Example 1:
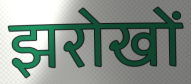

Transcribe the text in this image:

झरोखों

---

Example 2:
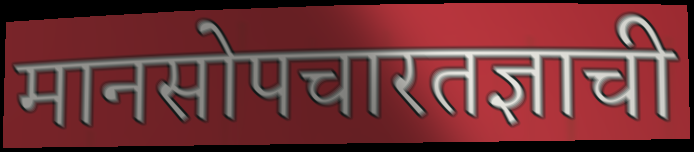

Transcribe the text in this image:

मानसोपचारतज्ञाची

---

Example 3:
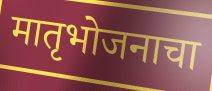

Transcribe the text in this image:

मातृभोजनाचा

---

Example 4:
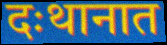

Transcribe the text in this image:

दःथानात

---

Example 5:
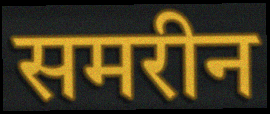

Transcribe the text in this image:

समरीन